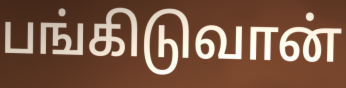
பங்கிடுவான்